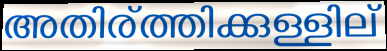
അതിര്ത്തിക്കുള്ളില്